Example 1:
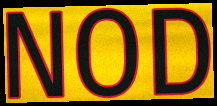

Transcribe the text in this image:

NOD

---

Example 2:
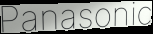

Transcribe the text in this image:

Panasonic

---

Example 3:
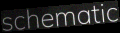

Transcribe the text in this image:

schematic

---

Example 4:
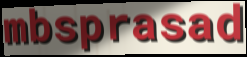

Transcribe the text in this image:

mbsprasad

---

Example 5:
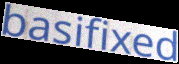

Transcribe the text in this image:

basifixed